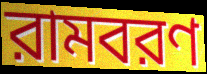
রামবরণ